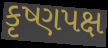
કૃષ્ણપક્ષ